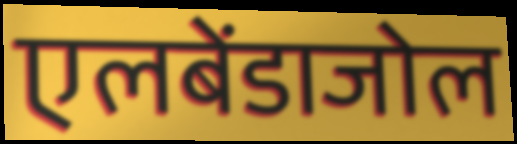
एलबेंडाजोल